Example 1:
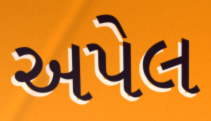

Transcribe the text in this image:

અપેલ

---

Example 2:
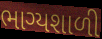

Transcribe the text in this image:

ભાગ્યશાળી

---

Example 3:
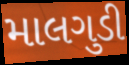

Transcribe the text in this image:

માલગુડી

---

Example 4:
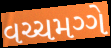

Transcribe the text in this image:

વચ્ચમગ્ગે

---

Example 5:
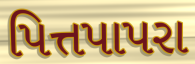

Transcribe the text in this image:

પિત્તપાપરા